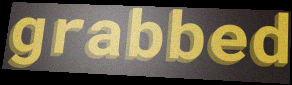
grabbed